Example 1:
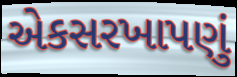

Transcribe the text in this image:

એકસરખાપણું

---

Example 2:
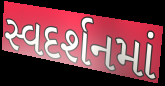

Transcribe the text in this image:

સ્વદર્શનમાં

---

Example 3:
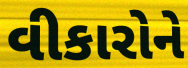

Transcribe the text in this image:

વીકારોને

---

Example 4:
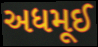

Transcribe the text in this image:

અધમૂઈ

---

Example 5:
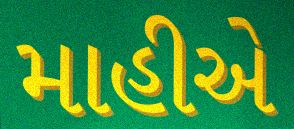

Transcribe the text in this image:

માહીએ